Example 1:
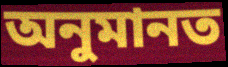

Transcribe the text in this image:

অনুমানত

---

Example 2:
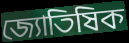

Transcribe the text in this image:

জ্যোতিষিক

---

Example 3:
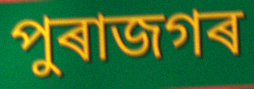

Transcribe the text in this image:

পুৰাজগৰ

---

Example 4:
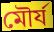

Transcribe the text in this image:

মৌৰ্য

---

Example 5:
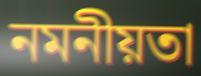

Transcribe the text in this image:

নমনীয়তা